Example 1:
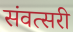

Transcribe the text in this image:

संवत्सरी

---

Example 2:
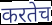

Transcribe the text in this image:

करतेच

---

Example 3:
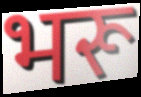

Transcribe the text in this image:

भरू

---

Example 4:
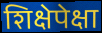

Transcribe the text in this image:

शिक्षेपेक्षा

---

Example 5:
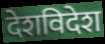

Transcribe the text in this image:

देशविदेश